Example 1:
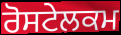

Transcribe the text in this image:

ਰੋਸਟੇਲਕਮ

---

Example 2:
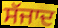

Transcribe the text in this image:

ਸੱਜਾਦ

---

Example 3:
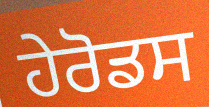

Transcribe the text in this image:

ਹੇਰੋਡਸ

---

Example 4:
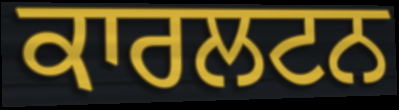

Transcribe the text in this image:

ਕਾਰਲਟਨ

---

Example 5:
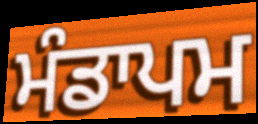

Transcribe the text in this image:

ਮੰਡਾਪਮ